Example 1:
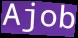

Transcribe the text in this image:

Ajob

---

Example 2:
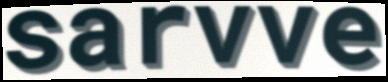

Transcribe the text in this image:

sarvve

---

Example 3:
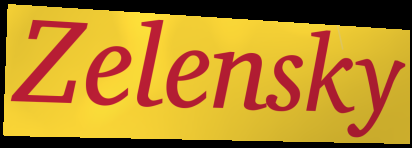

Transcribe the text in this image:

Zelensky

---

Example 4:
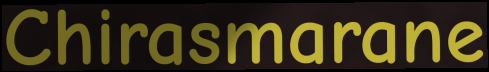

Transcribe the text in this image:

Chirasmarane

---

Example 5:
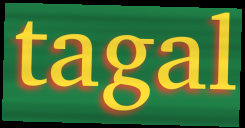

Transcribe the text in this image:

tagal